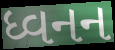
ધ્વનન